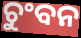
ଚୁଂବନ